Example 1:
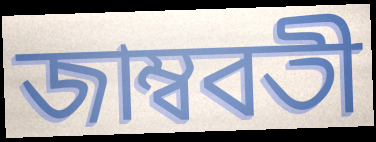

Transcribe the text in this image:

জাম্ববতী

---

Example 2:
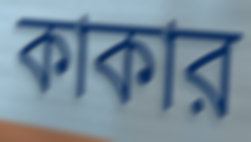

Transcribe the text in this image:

কাকার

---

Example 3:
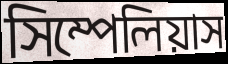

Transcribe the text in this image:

সিম্পেলিয়াস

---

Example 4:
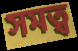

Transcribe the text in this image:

সমত্ব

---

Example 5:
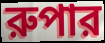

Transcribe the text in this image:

রুপার